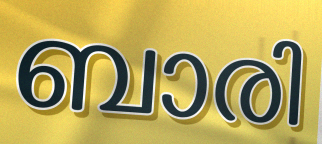
ബാരി